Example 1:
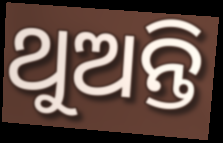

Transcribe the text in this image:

ଥୁଅନ୍ତି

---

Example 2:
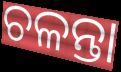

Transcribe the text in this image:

ଚଳନ୍ତା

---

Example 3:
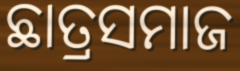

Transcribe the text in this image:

ଛାତ୍ରସମାଜ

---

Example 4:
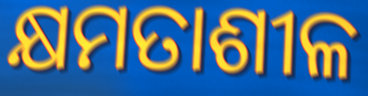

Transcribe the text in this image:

କ୍ଷମତାଶୀଳ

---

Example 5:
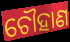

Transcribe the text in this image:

ଚୌହାଣ